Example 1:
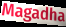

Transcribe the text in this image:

Magadha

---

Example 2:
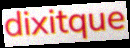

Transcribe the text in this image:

dixitque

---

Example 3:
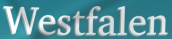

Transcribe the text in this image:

Westfalen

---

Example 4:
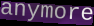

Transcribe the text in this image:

anymore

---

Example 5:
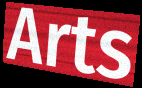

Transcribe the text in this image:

Arts